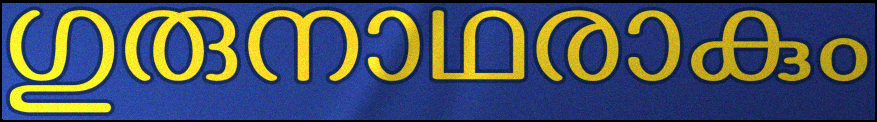
ഗുരുനാഥരാകും